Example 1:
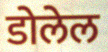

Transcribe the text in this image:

डोलेल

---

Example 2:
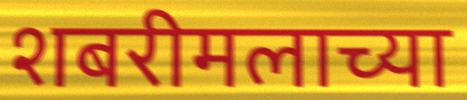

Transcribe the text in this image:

शबरीमलाच्या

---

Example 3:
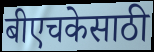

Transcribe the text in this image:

बीएचकेसाठी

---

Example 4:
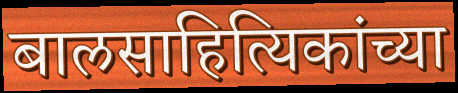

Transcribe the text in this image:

बालसाहित्यिकांच्या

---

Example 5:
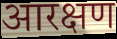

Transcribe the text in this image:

आरक्षण